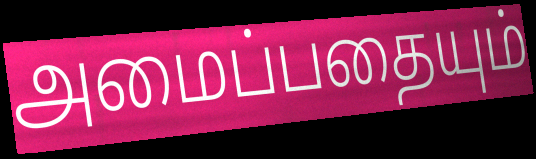
அமைப்பதையும்